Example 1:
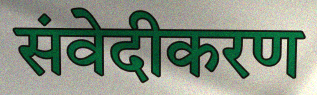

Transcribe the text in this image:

संवेदीकरण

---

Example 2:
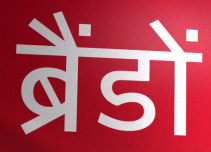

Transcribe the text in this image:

ब्रैंडों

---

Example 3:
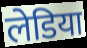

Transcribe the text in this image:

लेडिया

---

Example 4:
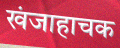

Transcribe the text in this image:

खंजाहाचक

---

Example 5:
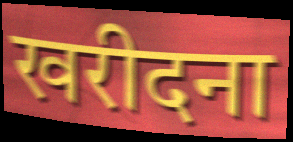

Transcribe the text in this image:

खरीदना